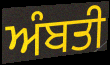
ਅੰਬਤੀ